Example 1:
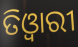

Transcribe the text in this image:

ତିଓ୍ଵାରୀ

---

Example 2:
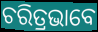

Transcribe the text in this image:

ଚରିତ୍ରଭାବେ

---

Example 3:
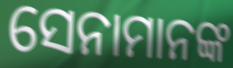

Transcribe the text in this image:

ସେନାମାନଙ୍କ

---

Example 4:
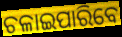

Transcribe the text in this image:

ଚଳାଇପାରିବେ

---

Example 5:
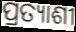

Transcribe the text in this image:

ପ୍ରତ୍ୟାଶୀ